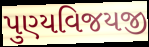
પુણ્યવિજયજી